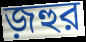
জ়হুর